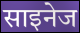
साइनेज